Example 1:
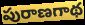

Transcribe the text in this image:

పురాణగాథ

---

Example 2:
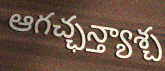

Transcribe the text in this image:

ఆగచ్ఛన్త్యాశ్చ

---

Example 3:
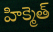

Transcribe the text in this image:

హిక్మెత్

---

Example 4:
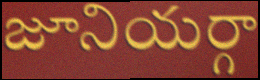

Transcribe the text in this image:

జూనియర్గా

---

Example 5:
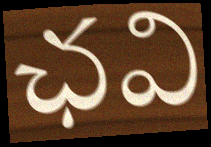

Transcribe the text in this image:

ఛవి